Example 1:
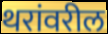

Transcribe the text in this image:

थरांवरील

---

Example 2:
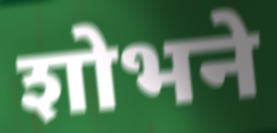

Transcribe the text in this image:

शोभने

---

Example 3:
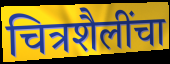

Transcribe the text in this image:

चित्रशैलींचा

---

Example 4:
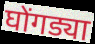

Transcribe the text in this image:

घोंगड्या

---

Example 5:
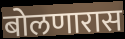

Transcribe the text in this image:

बोलणारास